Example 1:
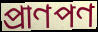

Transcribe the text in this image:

প্রাণপণ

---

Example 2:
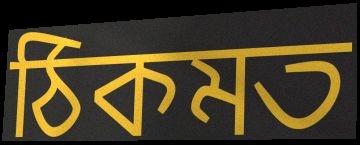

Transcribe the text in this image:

ঠিকমত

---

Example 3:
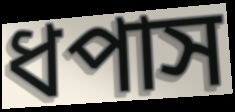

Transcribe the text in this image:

ধপাস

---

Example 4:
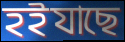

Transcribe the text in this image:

হইযাছে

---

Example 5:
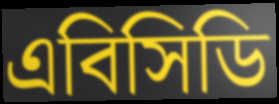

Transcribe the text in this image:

এবিসিডি